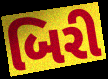
બિરી